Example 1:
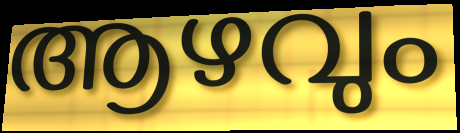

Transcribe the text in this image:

ആഴവും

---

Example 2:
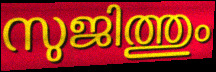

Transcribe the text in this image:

സുജിത്തും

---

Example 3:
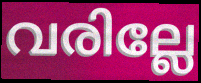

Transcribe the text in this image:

വരില്ലേ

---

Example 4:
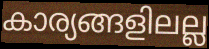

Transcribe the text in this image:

കാര്യങ്ങളിലല്ല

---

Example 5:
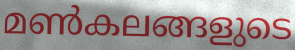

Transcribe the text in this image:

മൺകലങ്ങളുടെ